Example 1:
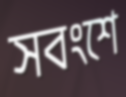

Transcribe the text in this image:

সবংশে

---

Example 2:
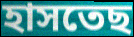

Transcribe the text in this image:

হাসতেছ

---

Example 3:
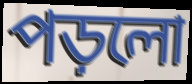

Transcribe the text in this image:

পড়লো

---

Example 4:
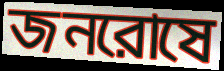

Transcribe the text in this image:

জনরোষে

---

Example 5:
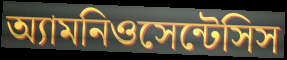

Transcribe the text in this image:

অ্যামনিওসেন্টেসিস